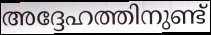
അദ്ദേഹത്തിനുണ്ട്